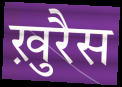
ख़ुरैस